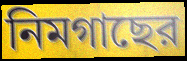
নিমগাছের